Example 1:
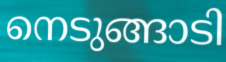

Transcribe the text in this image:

നെടുങ്ങാടി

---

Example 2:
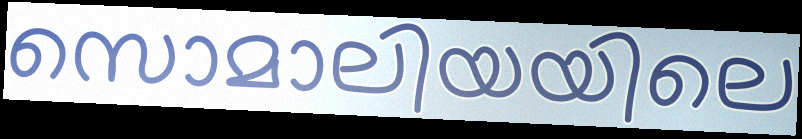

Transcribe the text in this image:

സൊമാലിയയിലെ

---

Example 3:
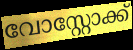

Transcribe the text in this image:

വോസ്റ്റോക്ക്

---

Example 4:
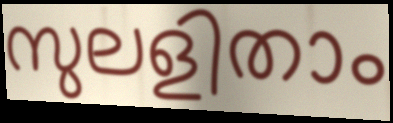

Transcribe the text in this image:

സുലളിതാം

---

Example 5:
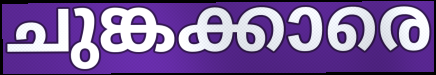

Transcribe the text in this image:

ചുങ്കക്കാരെ